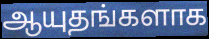
ஆயுதங்களாக